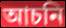
আচনি